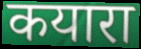
कयारा